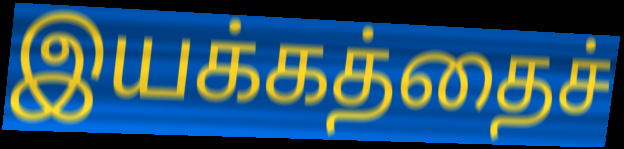
இயக்கத்தைச்